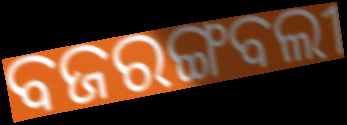
ବଜରଙ୍ଗବଲୀ